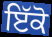
ਇੱਕੋ